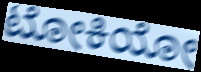
ಟೋಕಿಯೋ